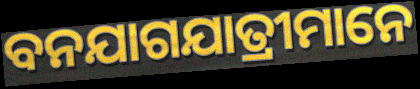
ବନଯାଗଯାତ୍ରୀମାନେ